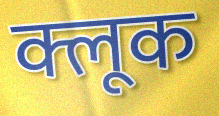
क्लूक